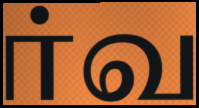
ர்வ